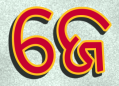
ଜେ